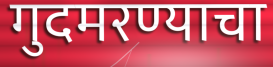
गुदमरण्याचा